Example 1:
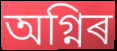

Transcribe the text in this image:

অগ্নিৰ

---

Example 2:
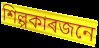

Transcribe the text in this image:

শিল্পকাৰজনে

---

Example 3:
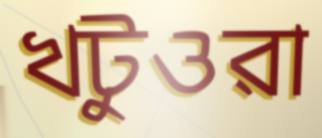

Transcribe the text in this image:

খটুওৱা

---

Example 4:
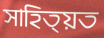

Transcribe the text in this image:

সাহিত্য়ত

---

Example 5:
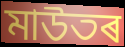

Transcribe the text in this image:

মাউতৰ